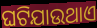
ଘଟିଯାଉଥାଏ